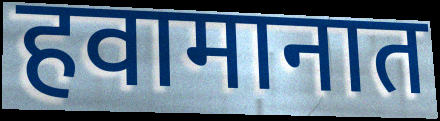
हवामानात